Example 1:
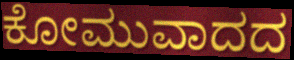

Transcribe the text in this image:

ಕೋಮುವಾದದ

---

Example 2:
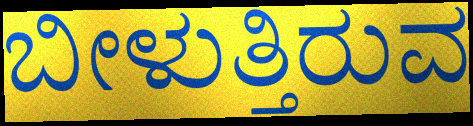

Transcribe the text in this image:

ಬೀಳುತ್ತಿರುವ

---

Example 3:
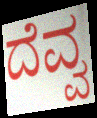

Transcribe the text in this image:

ದೆವ್ವ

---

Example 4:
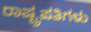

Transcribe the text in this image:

ರಾಷ್ಟ್ರಪತಿಗಳು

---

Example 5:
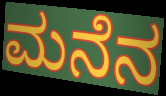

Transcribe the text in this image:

ಮನೆನ